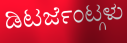
ಡಿಟರ್ಜೆಂಟ್ಗಳು